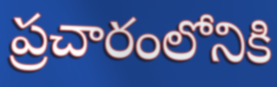
ప్రచారంలోనికి